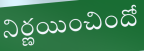
నిర్ణయించిందో